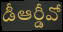
డీఆర్డీవో